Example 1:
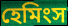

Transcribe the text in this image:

হেমিংস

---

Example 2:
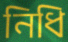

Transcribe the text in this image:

নিধি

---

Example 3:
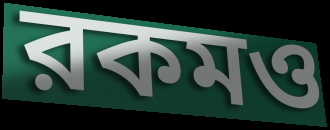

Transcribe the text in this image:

রকমও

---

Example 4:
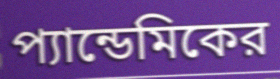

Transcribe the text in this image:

প্যান্ডেমিকের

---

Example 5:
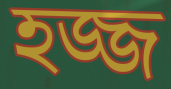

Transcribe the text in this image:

হজ্জ